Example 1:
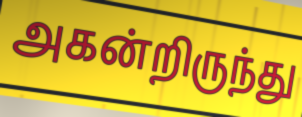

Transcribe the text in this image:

அகன்றிருந்து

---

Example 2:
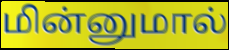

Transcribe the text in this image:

மின்னுமால்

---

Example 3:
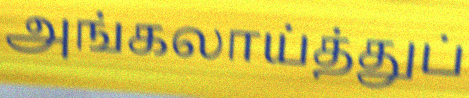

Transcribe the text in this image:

அங்கலாய்த்துப்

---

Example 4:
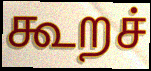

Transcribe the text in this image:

கூறச்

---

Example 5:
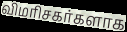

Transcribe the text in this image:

விமரிசகர்களாக